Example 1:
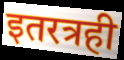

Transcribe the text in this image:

इतरत्रही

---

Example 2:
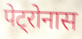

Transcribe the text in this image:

पेट्रोनास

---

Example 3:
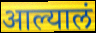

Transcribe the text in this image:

आल्यालं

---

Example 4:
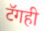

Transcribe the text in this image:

टॅगही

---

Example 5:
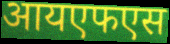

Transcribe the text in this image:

आयएफएस